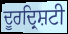
ਦੂਰਦ੍ਰਿਸ਼ਟੀ